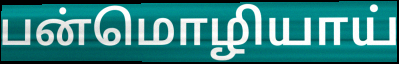
பன்மொழியாய்